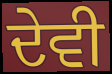
ਦੇਵੀ